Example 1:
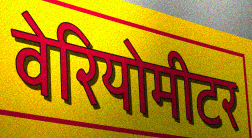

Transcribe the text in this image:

वेरियोमीटर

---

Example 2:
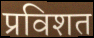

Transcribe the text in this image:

प्रविशत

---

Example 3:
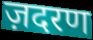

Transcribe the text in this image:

ज़दरण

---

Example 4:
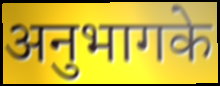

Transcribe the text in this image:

अनुभागके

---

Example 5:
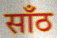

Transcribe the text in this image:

साँठ